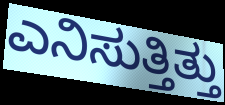
ಎನಿಸುತ್ತಿತ್ತು